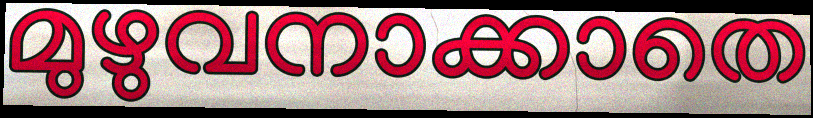
മുഴുവനാക്കാതെ